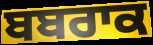
ਬਬਰਾਕ